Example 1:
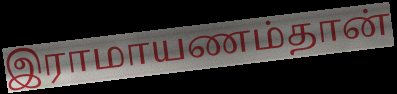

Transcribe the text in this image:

இராமாயணம்தான்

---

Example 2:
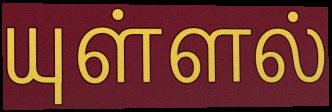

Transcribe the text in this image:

யுள்ளல்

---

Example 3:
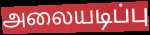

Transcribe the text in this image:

அலையடிப்பு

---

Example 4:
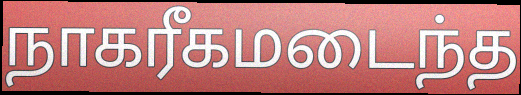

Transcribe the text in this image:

நாகரீகமடைந்த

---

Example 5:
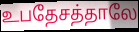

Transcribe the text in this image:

உபதேசத்தாலே